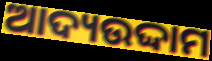
ଆଦ୍ୟଉଦ୍ଦାମ